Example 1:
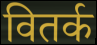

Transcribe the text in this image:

वितर्क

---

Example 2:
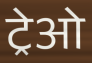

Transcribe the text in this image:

ट्रेओ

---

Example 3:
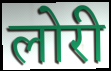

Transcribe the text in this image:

लोरी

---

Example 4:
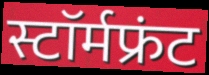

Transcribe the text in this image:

स्टॉर्मफ्रंट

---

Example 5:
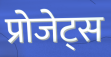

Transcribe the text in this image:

प्रोजेट्स